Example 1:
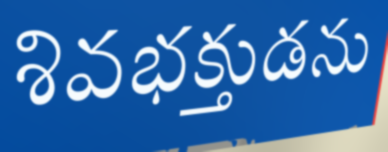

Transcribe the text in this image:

శివభక్తుడను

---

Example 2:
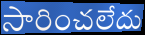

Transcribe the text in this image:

సారించలేదు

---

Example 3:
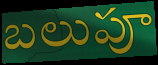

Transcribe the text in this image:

బలుపూ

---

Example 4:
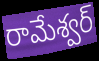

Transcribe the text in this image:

రామేశ్వర్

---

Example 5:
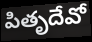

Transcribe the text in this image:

పితృదేవో